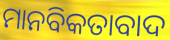
ମାନବିକତାବାଦ